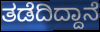
ತಡೆದಿದ್ದಾನೆ